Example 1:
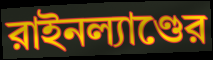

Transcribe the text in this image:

রাইনল্যাণ্ডের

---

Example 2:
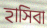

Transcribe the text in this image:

হাসিবা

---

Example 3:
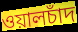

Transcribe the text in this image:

ওয়ালচাঁদ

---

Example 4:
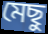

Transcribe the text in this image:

মেছু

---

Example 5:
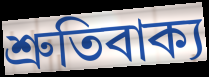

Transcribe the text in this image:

শ্রুতিবাক্য